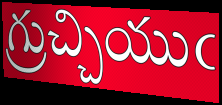
గ్రుచ్చియుఁ